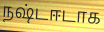
நஷ்டஈடாக